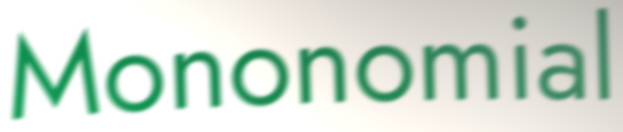
Mononomial